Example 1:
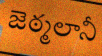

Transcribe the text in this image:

జెఠ్మలానీ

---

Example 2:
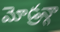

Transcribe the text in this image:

మోడ్రన్గా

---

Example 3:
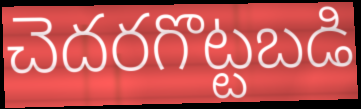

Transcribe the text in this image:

చెదరగొట్టబడి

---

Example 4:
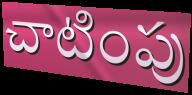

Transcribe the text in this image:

చాటింపు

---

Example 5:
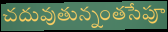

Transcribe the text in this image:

చదువుతున్నంతసేపూ